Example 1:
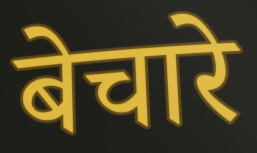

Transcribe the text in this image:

बेचारे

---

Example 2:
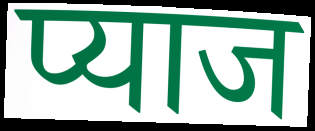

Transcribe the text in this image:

प्याज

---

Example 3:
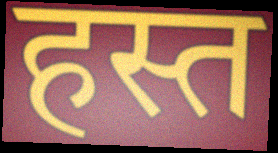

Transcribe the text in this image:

हस्त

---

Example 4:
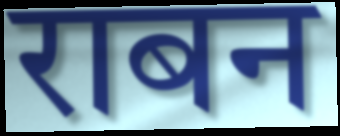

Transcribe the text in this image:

राबन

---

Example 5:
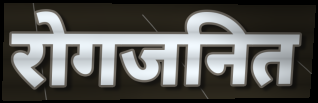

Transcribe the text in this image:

रोगजनित